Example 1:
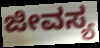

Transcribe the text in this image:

ಜೀವಸ್ಯ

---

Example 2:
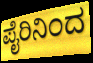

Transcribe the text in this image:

ಪೈರಿನಿಂದ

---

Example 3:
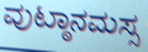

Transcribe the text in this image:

ವುಟ್ಠಾನಮಸ್ಸ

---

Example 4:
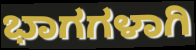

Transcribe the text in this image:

ಭಾಗಗಳಾಗಿ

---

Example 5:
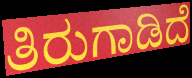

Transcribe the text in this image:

ತಿರುಗಾಡಿದೆ